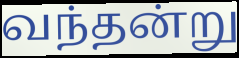
வந்தன்று